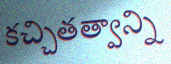
కచ్చితత్వాన్ని